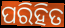
ପରିହିତ